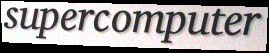
supercomputer